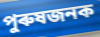
পুৰুষজনক